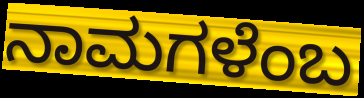
ನಾಮಗಳೆಂಬ